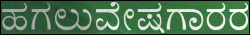
ಹಗಲುವೇಷಗಾರರ